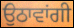
ਉਠਾਵਾਂਗੀ